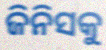
ଜିନିସକୁ